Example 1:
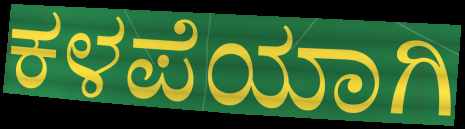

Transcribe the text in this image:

ಕಳಪೆಯಾಗಿ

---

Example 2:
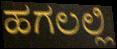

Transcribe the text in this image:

ಹಗಲಲ್ಲಿ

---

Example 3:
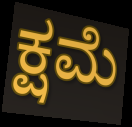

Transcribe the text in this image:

ಕ್ಷಮೆ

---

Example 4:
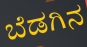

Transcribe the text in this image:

ಬೆಡಗಿನ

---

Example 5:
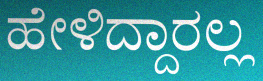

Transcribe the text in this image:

ಹೇಳಿದ್ದಾರಲ್ಲ